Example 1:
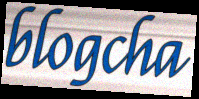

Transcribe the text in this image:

blogcha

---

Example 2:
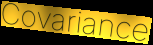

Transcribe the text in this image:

Covariance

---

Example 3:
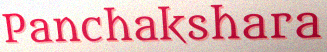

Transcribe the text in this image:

Panchakshara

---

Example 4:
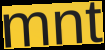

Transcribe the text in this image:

mnt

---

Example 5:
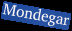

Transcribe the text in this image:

Mondegar